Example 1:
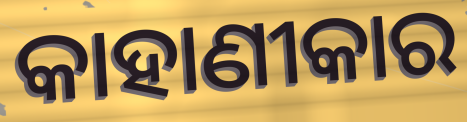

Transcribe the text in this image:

କାହାଣୀକାର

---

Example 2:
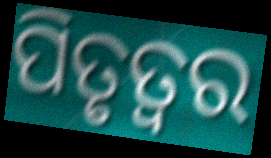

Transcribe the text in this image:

ପିତୃତ୍ୱର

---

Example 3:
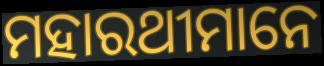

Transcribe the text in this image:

ମହାରଥୀମାନେ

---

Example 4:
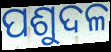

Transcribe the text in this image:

ପଶୁଦଳ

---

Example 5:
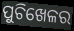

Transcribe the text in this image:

ପୁଚିଖେଳର